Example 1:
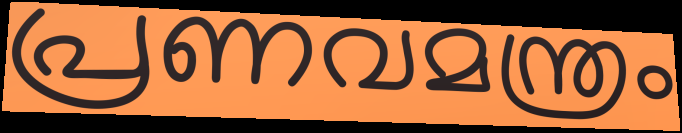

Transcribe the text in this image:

പ്രണവമന്ത്രം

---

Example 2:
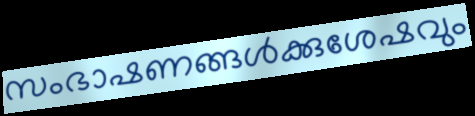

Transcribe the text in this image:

സംഭാഷണങ്ങൾക്കുശേഷവും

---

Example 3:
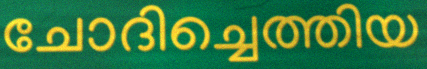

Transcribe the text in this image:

ചോദിച്ചെത്തിയ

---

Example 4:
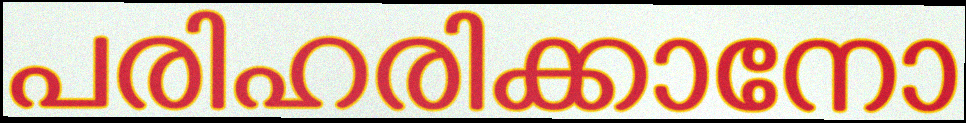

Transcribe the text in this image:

പരിഹരിക്കാനോ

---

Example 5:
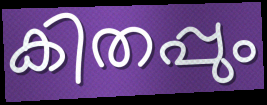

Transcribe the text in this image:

കിതപ്പും